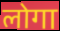
लोगा